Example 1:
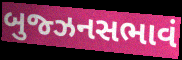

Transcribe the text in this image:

બુજ્ઝનસભાવં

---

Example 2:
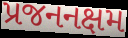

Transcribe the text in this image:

પ્રજનનક્ષમ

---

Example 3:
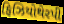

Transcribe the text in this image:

ફિઝિયોથેરપી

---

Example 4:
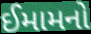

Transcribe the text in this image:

ઈમામનો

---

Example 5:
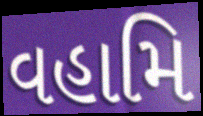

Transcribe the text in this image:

વહામિ